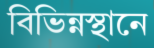
বিভিন্নস্থানে